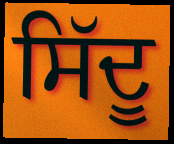
ਸਿੱਦੂ